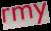
rmy